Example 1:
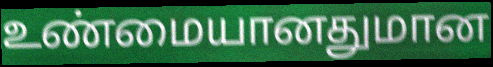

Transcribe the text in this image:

உண்மையானதுமான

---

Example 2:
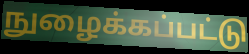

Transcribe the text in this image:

நுழைக்கப்பட்டு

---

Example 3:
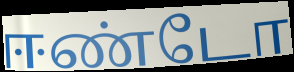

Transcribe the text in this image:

ஈண்டோ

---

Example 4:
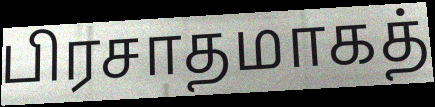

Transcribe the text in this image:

பிரசாதமாகத்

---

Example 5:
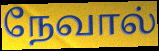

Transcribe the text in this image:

நேவால்